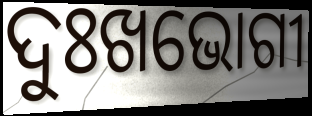
ଦୁଃଖଭୋଗୀ